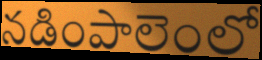
నడింపాలెంలో